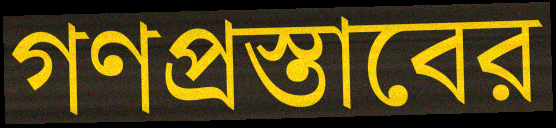
গণপ্রস্তাবের